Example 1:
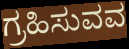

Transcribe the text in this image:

ಗ್ರಹಿಸುವವ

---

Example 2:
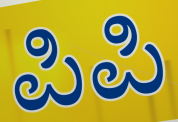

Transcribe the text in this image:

ಪಿಪಿ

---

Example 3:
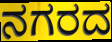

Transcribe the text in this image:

ನಗರದ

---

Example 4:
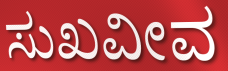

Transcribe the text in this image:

ಸುಖವೀವ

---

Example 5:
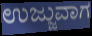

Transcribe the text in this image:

ಉಜ್ಜುವಾಗ